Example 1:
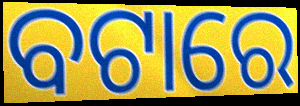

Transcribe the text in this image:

ବଟାରେ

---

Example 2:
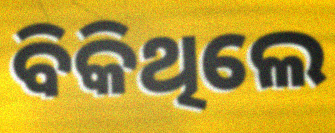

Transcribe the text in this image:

ବିକିଥିଲେ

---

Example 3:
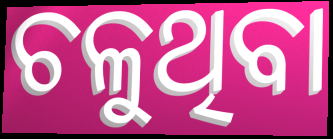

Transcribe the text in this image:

ଚଳୁଥିବା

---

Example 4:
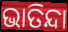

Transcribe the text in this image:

ଭାତିନ୍ଦା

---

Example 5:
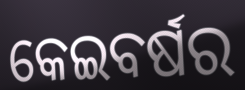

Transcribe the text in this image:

କେଇବର୍ଷର